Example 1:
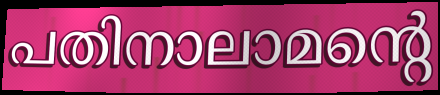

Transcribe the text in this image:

പതിനാലാമന്റെ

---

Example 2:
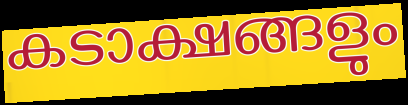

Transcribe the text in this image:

കടാക്ഷങ്ങളും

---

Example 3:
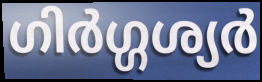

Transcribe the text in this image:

ഗിർഗ്ഗശ്യർ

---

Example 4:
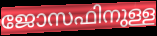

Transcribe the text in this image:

ജോസഫിനുള്ള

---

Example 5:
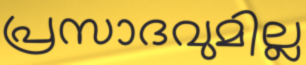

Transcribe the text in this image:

പ്രസാദവുമില്ല